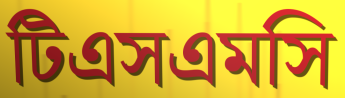
টিএসএমসি